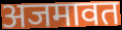
अजमावत